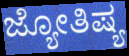
ಜ್ಯೋತಿಷ್ಯ